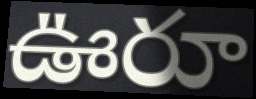
ఊరూ